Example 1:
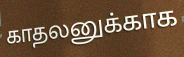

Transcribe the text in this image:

காதலனுக்காக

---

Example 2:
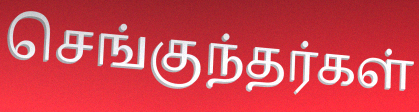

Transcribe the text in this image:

செங்குந்தர்கள்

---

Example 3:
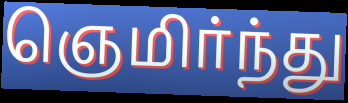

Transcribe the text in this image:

ஞெமிர்ந்து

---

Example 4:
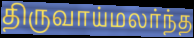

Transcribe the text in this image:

திருவாய்மலர்ந்த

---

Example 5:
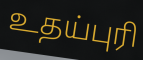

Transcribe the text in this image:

உதய்புரி